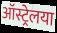
ऑस्ट्रेलया